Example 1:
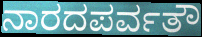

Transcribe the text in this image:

ನಾರದಪರ್ವತೌ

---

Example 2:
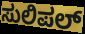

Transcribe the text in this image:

ಸುಲಿಪಲ್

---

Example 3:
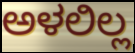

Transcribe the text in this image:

ಅಳಲಿಲ್ಲ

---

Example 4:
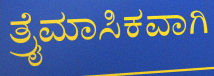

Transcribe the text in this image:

ತ್ರೈಮಾಸಿಕವಾಗಿ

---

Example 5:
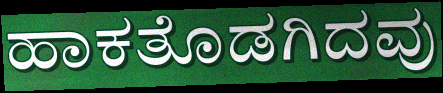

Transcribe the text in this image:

ಹಾಕತೊಡಗಿದವು